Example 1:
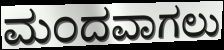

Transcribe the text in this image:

ಮಂದವಾಗಲು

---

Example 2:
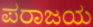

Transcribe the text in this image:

ಪರಾಜಯ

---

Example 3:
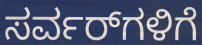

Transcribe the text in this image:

ಸರ್ವರ್‌ಗಳಿಗೆ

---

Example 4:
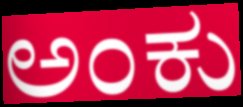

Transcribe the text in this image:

ಅಂಕು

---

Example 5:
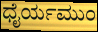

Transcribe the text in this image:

ಧೈರ್ಯಮುಂ